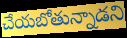
చేయబోతున్నాడని